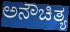
ಅನೌಚಿತ್ಯ